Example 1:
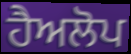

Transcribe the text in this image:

ਹੈਅਲੋਪ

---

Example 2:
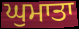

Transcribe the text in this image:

ਘੁਮਾਤਾ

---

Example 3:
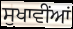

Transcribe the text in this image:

ਸੁਖਾਵੀਂਆਂ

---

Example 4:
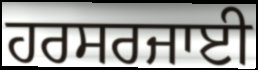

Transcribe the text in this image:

ਹਰਸਰਜਾਈ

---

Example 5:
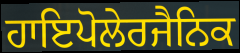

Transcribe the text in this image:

ਹਾਇਪੋਲੇਰਜੈਨਿਕ